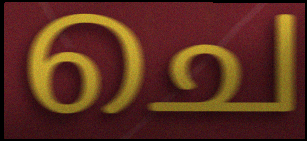
ചെ